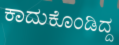
ಕಾದುಕೊಂಡಿದ್ದ